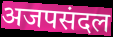
अजपसंदल